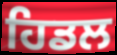
ਹਿਡਲ